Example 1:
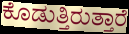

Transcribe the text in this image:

ಕೊಡುತ್ತಿರುತ್ತಾರೆ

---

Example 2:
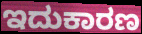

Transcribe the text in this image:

ಇದುಕಾರಣ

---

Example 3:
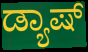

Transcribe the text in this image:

ಡ್ಯಾಷ್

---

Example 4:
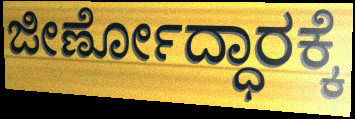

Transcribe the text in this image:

ಜೀರ್ಣೋದ್ಧಾರಕ್ಕೆ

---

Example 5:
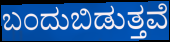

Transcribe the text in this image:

ಬಂದುಬಿಡುತ್ತವೆ